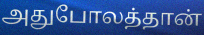
அதுபோலத்தான்